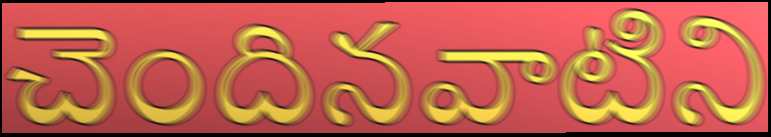
చెందినవాటిని